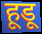
हूडू